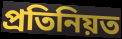
প্রতিনিয়ত